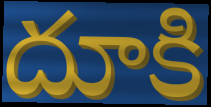
దూకి